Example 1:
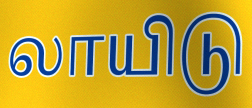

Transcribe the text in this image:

லாயிடு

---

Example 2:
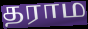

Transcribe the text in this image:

தராம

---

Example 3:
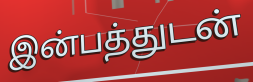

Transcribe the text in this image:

இன்பத்துடன்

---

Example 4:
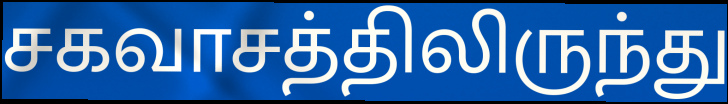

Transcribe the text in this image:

சகவாசத்திலிருந்து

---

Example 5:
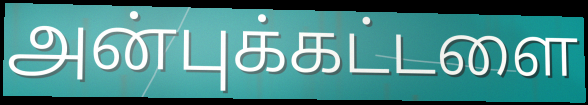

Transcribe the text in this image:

அன்புக்கட்டளை